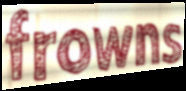
frowns